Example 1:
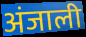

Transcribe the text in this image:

अंजाली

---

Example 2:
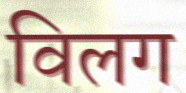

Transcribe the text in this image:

विलग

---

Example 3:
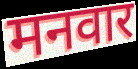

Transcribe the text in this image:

मनवार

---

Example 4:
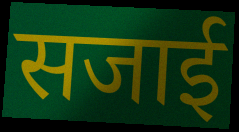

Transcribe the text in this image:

सजाई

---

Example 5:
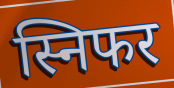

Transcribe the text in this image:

स्निफर